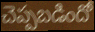
చెప్పబడిందో